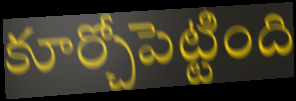
కూర్చోపెట్టింది